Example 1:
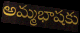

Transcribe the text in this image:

అమ్మభాషకు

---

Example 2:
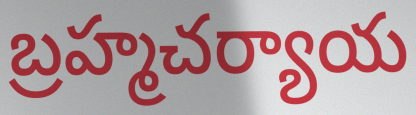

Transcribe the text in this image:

బ్రహ్మచర్యాయ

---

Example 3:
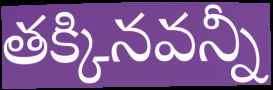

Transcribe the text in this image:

తక్కినవన్నీ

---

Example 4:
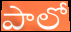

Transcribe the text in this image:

పాలో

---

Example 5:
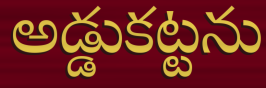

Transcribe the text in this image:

అడ్డుకట్టను